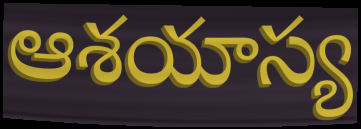
ఆశయాస్య